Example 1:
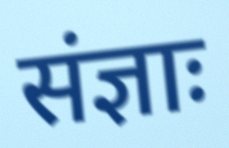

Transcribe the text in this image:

संज्ञाः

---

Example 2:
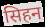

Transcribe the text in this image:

सिहन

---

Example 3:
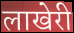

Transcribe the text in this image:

लाखेरी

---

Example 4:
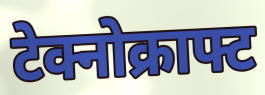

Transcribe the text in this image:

टेक्नोक्राफ्ट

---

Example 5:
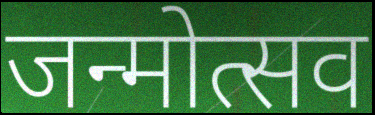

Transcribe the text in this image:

जन्मोत्सव